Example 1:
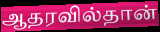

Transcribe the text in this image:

ஆதரவில்தான்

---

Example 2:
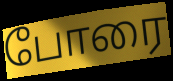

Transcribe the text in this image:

போரை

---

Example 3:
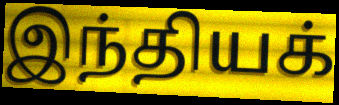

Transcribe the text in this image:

இந்தியக்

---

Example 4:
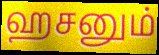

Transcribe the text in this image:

ஹசனும்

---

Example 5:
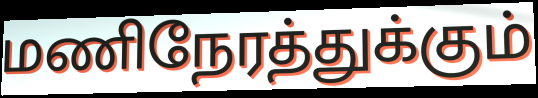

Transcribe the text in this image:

மணிநேரத்துக்கும்